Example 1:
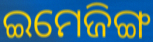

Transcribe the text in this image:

ଇମେଜିଙ୍ଗ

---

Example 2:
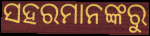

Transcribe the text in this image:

ସହରମାନଙ୍କରୁ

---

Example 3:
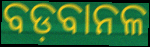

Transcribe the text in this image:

ବଡ଼ବାନଳ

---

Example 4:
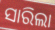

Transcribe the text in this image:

ସାରିଲା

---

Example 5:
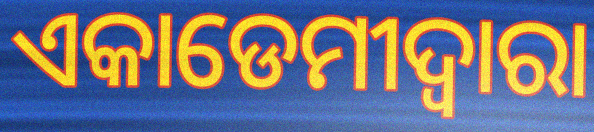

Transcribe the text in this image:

ଏକାଡେମୀଦ୍ୱାରା